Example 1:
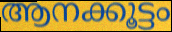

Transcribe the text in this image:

ആനക്കൂട്ടം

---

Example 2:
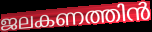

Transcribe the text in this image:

ജലകണത്തിൻ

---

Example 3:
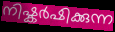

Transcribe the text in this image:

നിഷ്കർഷിക്കുന്ന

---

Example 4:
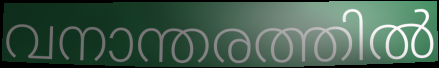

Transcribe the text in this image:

വനാന്തരത്തിൽ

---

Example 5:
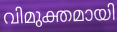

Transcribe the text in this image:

വിമുക്തമായി